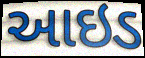
આઇડ